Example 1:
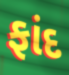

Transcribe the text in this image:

ફાંદ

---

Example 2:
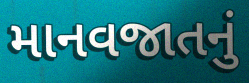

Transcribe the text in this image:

માનવજાતનું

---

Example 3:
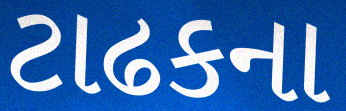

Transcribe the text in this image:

ટાઢકના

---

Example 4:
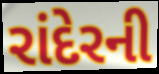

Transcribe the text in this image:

રાંદેરની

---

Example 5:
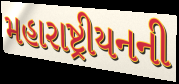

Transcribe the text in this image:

મહારાષ્ટ્રીયનની